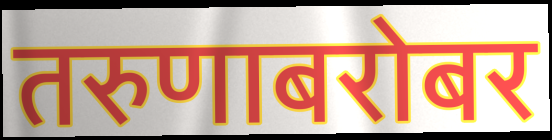
तरुणाबरोबर